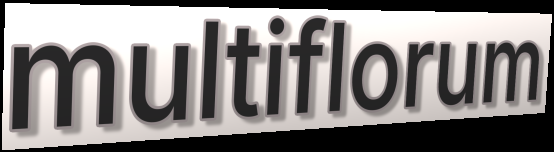
multiflorum